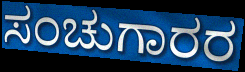
ಸಂಚುಗಾರರ